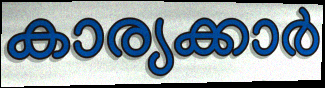
കാര്യക്കാർ